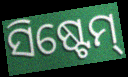
ସିଷ୍ଟେମ୍